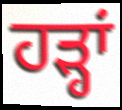
ਹੜ੍ਹਾਂ